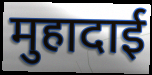
मुहादाई